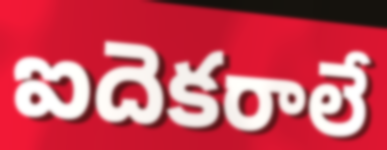
ఐదెకరాలే